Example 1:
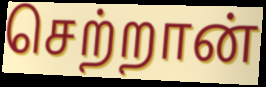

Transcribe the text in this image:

செற்றான்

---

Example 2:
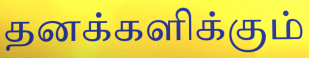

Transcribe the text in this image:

தனக்களிக்கும்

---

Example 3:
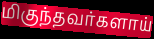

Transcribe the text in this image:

மிகுந்தவர்களாய்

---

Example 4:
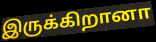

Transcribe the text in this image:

இருக்கிறானா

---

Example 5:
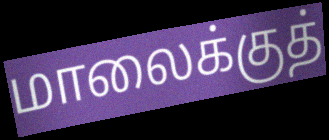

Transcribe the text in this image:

மாலைக்குத்